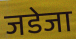
जडेजा